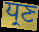
ਧ੍ਰਣ